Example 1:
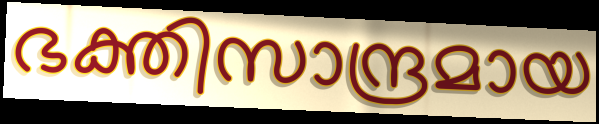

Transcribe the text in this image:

ഭക്തിസാന്ദ്രമായ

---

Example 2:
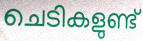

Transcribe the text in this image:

ചെടികളുണ്ട്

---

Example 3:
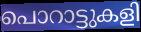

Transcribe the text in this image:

പൊറാട്ടുകളി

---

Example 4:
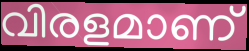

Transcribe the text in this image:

വിരളമാണ്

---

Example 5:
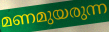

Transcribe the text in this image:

മണമുയരുന്ന